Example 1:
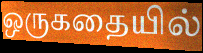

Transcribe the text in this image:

ஒருகதையில்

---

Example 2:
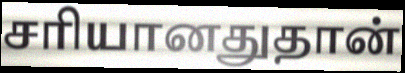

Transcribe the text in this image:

சரியானதுதான்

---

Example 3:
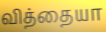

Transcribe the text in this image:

வித்தையா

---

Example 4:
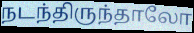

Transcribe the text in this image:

நடந்திருந்தாலோ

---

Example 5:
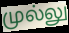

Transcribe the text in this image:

முல்லு